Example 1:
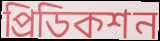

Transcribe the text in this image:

প্রিডিকশন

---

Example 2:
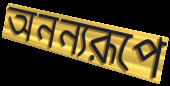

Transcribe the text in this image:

অনন্যরূপে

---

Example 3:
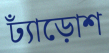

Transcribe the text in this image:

ঢ্যাঁড়োশ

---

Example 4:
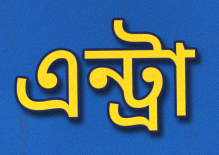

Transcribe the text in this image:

এন্ট্রা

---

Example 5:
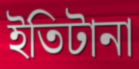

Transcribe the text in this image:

ইতিটানা